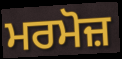
ਮਰਮੋਜ਼